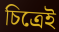
চিত্রেই